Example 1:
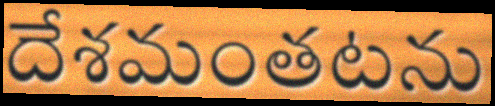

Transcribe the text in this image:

దేశమంతటను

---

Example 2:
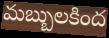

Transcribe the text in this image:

మబ్బులకింద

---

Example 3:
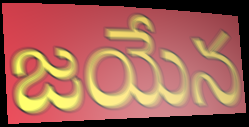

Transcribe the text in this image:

జయేన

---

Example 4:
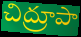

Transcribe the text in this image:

చిద్రూపా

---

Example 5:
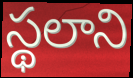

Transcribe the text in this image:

స్థలాని